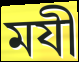
মযী